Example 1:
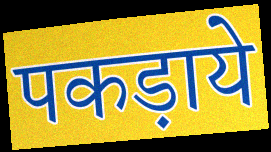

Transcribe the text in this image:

पकड़ाये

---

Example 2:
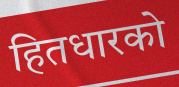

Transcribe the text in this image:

हितधारको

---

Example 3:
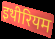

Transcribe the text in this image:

इथीरियम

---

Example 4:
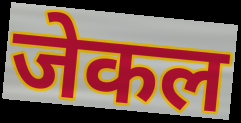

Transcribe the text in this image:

जेकल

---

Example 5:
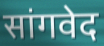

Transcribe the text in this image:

सांगवेद